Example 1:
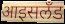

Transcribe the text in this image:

आइसलँड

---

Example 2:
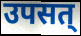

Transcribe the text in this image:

उपसत्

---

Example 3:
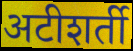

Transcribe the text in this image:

अटीशर्ती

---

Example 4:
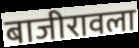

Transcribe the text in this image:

बाजीरावला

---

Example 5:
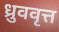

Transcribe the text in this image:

ध्रुववृत्त